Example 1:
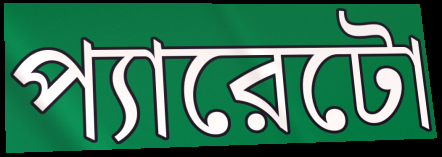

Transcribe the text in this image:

প্যারেটো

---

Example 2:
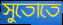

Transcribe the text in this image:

সুতোতে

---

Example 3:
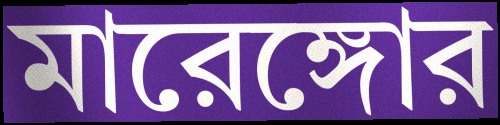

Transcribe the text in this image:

মারেঙ্গোর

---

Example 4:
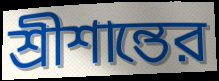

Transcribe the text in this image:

শ্রীশান্তের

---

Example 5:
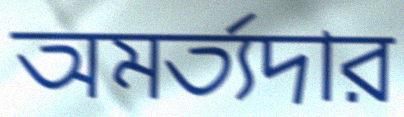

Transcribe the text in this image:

অমর্ত্যদার